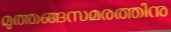
മുത്തങ്ങസമരത്തിനു